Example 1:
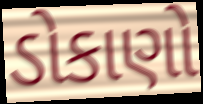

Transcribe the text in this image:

ડોકાણો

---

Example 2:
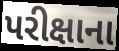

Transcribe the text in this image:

પરીક્ષાના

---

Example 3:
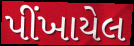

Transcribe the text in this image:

પીંખાયેલ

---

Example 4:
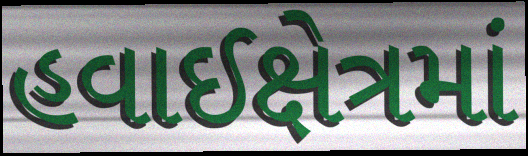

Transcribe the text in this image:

હવાઈક્ષેત્રમાં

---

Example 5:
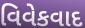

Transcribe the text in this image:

વિવેકવાદ